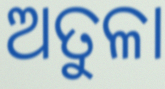
ଅତୁଳା